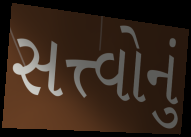
સત્ત્વોનું